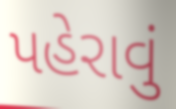
પહેરાવું